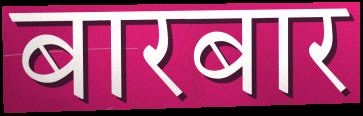
बारबार